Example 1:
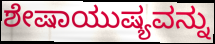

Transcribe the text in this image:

ಶೇಷಾಯುಷ್ಯವನ್ನು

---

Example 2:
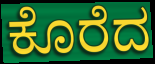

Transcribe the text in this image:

ಕೊರೆದ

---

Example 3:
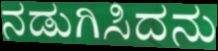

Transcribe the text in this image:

ನಡುಗಿಸಿದನು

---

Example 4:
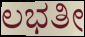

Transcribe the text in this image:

ಲಭತೀ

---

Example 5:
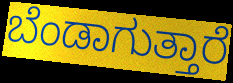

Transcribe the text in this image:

ಬೆಂಡಾಗುತ್ತಾರೆ